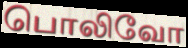
பொலிவோ